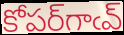
కోపర్‌గాఁవ్